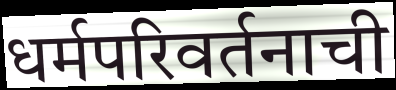
धर्मपरिवर्तनाची